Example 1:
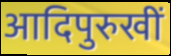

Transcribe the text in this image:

आदिपुरुखीं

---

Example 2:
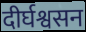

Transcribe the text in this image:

दीर्घश्वसन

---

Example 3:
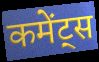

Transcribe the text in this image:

कमेंट्‌स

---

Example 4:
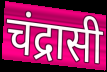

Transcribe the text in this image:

चंद्रासी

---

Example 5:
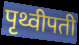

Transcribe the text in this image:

पृथ्वीपती